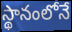
స్థానంలోనే